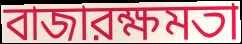
বাজারক্ষমতা